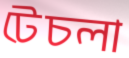
টেচলা